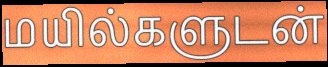
மயில்களுடன்